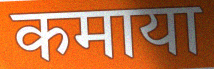
कमाया